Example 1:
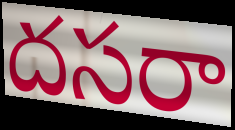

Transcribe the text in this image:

దసరా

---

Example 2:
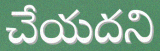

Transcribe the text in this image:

చేయదని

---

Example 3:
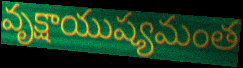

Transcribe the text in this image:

వృక్షాయుష్యమంత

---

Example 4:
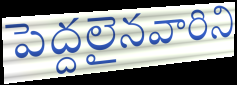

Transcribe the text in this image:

పెద్దలైనవారిని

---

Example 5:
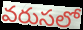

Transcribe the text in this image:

వరుసలో